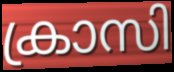
ക്രാസി